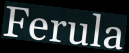
Ferula